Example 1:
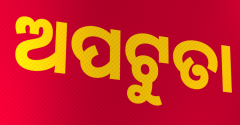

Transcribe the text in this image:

ଅପଟୁତା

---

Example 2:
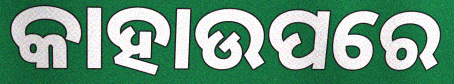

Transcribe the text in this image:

କାହାଉପରେ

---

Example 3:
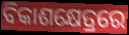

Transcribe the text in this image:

ବିକାଶକ୍ଷେତ୍ରରେ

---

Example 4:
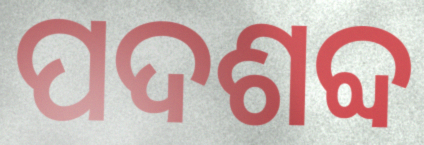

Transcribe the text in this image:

ପଦଶବ୍ଦ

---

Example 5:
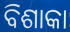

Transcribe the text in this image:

ବିଶାକା